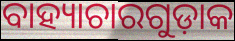
ବାହ୍ୟାଚାରଗୁଡ଼ାକ